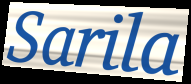
Sarila